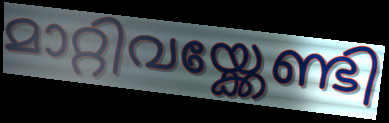
മാറ്റിവയ്ക്കേണ്ടി